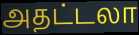
அதட்டலா